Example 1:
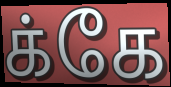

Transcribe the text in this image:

க்கே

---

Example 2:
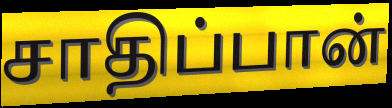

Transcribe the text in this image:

சாதிப்பான்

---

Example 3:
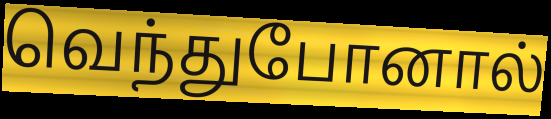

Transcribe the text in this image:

வெந்துபோனால்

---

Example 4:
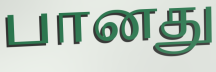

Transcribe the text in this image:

பானது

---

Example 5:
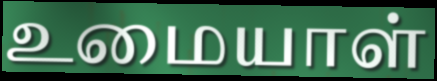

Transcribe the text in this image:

உமையாள்